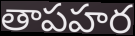
తాపహర